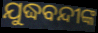
ଯୁଦ୍ଧବନ୍ଦୀଙ୍କ